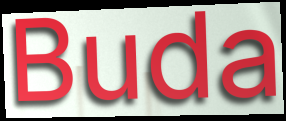
Buda